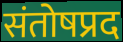
संतोषप्रद